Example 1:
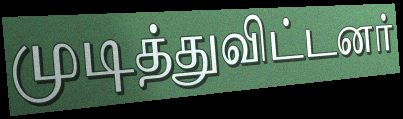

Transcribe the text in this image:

முடித்துவிட்டனர்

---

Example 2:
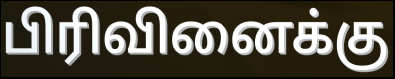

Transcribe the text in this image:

பிரிவினைக்கு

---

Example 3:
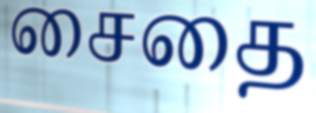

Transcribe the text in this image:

சைதை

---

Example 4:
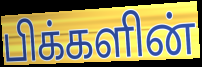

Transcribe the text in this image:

பிக்களின்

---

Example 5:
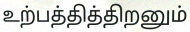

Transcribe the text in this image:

உற்பத்தித்திறனும்